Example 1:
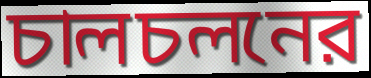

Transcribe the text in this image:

চালচলনের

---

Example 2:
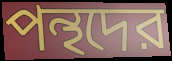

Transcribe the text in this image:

পন্থদের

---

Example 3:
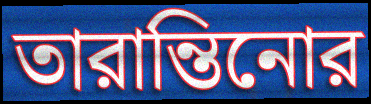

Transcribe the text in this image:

তারান্তিনোর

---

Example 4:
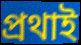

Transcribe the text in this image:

প্রথাই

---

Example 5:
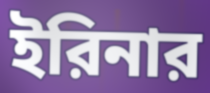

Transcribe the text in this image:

ইরিনার